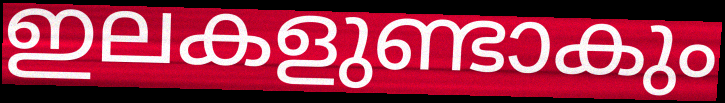
ഇലകളുണ്ടാകും